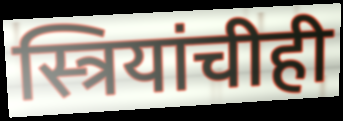
स्त्रियांचीही